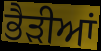
ਭੈੜੀਆਂ